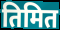
तिमित